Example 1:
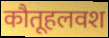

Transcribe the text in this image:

कौतूहलवश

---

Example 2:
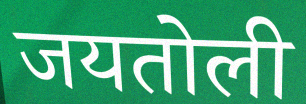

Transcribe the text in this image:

जयतोली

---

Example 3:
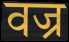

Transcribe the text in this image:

वज्र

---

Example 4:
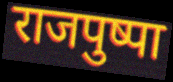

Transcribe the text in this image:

राजपुष्पा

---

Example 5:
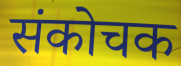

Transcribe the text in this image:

संकोचक